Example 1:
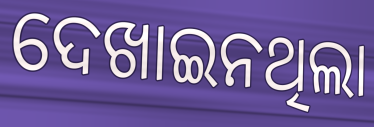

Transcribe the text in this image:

ଦେଖାଇନଥିଲା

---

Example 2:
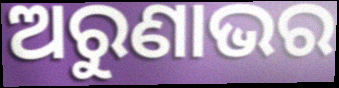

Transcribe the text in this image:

ଅରୁଣାଭର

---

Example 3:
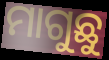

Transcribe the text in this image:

ମାଗୁଛୁ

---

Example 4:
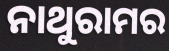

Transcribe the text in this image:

ନାଥୁରାମର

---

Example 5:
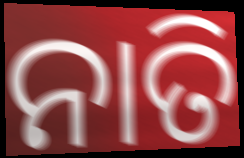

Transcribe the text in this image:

ନାତି